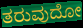
ತರುವುದೋ